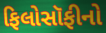
ફિલોસૉફીનો